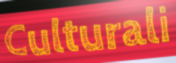
Culturali